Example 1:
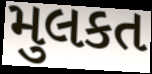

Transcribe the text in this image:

મુલકત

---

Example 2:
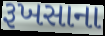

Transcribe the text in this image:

રૂખસાના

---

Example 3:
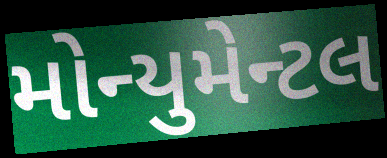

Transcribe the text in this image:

મોન્યુમેન્ટલ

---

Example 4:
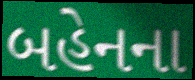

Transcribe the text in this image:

બહેનના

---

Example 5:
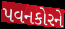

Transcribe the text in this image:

પવનકોરને